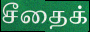
சீதைக்